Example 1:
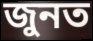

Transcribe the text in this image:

জুনত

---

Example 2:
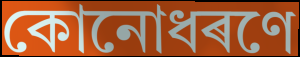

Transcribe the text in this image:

কোনোধৰণে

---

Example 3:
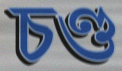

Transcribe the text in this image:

চণ্ড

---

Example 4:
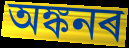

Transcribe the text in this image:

অঙ্কনৰ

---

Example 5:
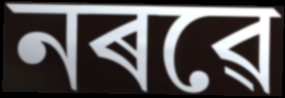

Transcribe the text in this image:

নৰৱে